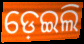
ଡ଼େଇଲି